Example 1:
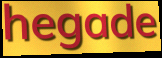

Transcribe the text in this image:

hegade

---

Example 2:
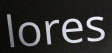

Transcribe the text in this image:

lores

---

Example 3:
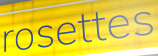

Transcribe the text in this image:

rosettes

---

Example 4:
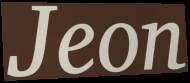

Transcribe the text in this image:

Jeon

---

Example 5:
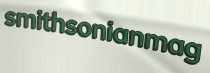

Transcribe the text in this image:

smithsonianmag